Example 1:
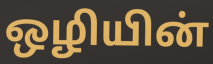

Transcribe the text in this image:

ஒழியின்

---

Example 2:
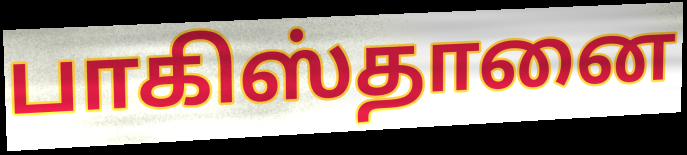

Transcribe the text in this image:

பாகிஸ்தானை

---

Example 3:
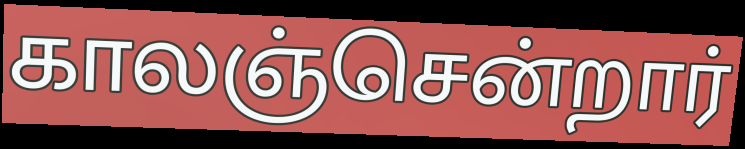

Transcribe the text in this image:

காலஞ்சென்றார்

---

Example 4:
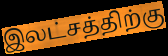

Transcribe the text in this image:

இலட்சத்திற்கு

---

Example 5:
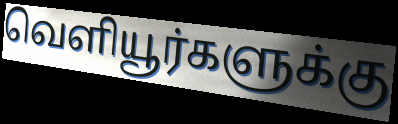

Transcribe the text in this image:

வெளியூர்களுக்கு